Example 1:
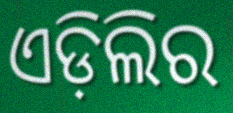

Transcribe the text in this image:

ଏଡ଼ିଲିର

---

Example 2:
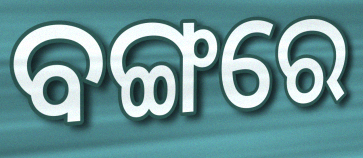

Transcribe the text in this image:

ବଙ୍ଗରେ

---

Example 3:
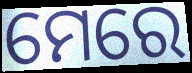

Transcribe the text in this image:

ମେରେ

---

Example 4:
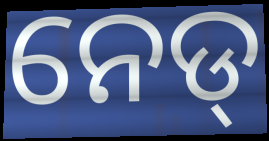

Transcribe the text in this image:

ନେଡ୍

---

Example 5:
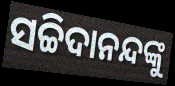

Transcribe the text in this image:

ସଚ୍ଚିଦାନନ୍ଦଙ୍କୁ